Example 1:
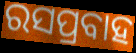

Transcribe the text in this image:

ରସପ୍ରବାହ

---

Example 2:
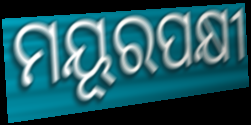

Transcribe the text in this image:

ମୟୂରପକ୍ଷୀ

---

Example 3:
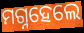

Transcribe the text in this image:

ମଗ୍ନହେଲେ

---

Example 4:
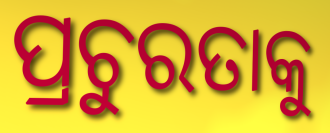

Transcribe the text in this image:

ପ୍ରଚୁରତାକୁ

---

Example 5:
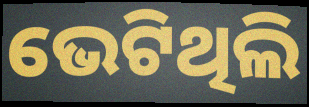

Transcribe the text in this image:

ଭେଟିଥିଲି